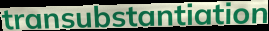
transubstantiation